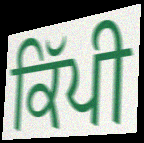
ਕਿੱਪੀ